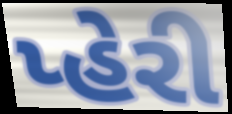
પ્હેરી